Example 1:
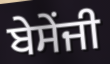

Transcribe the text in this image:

ਬੇਸੇਂਜੀ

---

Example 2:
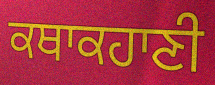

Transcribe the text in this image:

ਕਥਾਕਹਾਣੀ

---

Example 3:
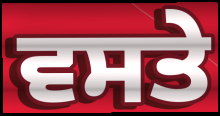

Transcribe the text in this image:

ਵਸਤੇ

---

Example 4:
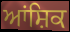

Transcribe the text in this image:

ਆਂਸ਼ਿਕ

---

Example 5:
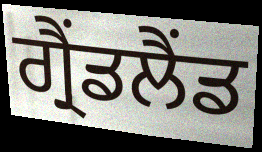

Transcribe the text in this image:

ਗ੍ਰੈਂਡਲੈਂਡ